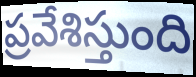
ప్రవేశిస్తుంది